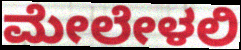
ಮೇಲೇಳಲಿ